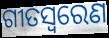
ଗୀତସ୍ବରେଣ